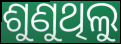
ଶୁଣୁଥିଲୁ